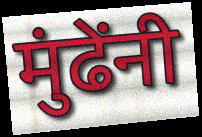
मुंढेंनी